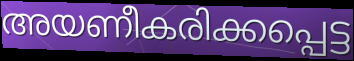
അയണീകരിക്കപ്പെട്ട